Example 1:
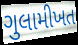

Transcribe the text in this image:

ગુલામીખત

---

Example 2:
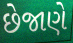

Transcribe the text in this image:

છેજાણે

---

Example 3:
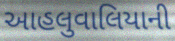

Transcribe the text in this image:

આહલુવાલિયાની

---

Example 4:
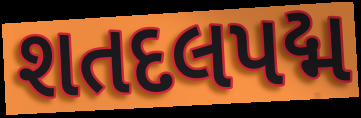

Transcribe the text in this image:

શતદલપદ્મ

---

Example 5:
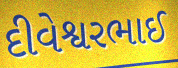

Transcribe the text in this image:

દીવેશ્વરભાઈ